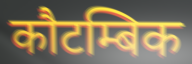
कौटम्बिक